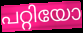
പറ്റിയോ